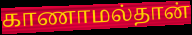
காணாமல்தான்